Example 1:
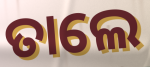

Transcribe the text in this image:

ତାଲେ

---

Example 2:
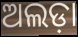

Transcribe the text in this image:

ଅଲଡ଼ା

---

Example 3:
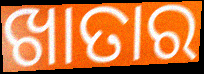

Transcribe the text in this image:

ଖାତାର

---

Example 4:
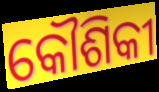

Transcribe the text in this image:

କୌଶିକୀ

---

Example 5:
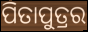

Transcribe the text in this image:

ପିତାପୁତ୍ରର